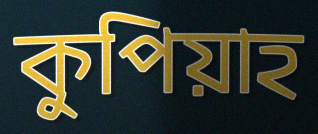
কুপিয়াহ